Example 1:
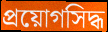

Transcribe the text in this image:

প্রয়োগসিদ্ধ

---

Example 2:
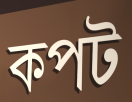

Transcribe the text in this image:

কপট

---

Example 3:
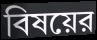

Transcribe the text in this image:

বিষয়ের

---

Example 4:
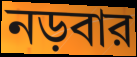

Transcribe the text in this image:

নড়বার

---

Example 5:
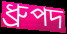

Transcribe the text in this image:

ধ্রুপদ